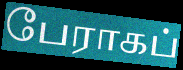
பேராகப்